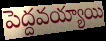
పెద్దవయ్యాయి